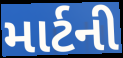
માર્ટની